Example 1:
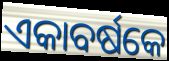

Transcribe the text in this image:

ଏକାବର୍ଷକେ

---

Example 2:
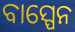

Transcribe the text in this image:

ବାସ୍ପେନ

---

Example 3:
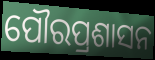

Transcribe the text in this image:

ପୌରପ୍ରଶାସନ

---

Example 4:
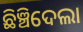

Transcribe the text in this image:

ଛିଞ୍ଚିଦେଲା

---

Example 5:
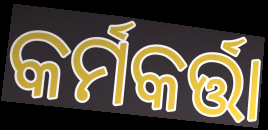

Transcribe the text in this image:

କର୍ମକର୍ତ୍ତା